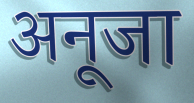
अनूजा